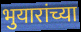
भुयारांच्या